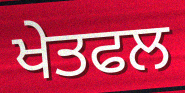
ਖੇਤਫਲ